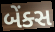
બેંક્સ